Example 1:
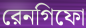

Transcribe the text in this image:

রেনগিফো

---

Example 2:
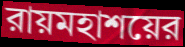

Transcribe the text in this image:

রায়মহাশয়ের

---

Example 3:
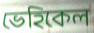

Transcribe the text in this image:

ভেহিকেল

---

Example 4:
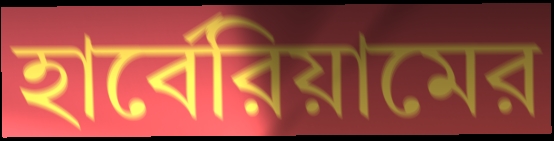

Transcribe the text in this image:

হার্বেরিয়ামের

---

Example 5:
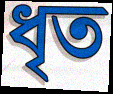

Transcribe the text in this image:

ধৃত